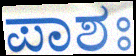
ಪಾಶಃ